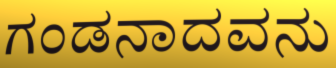
ಗಂಡನಾದವನು